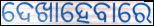
ଦେଖାହେବାରେ